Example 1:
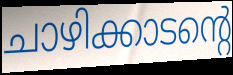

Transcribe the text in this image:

ചാഴിക്കാടന്റെ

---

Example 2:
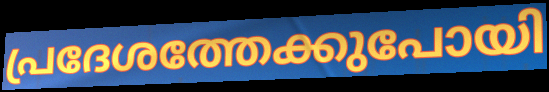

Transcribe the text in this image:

പ്രദേശത്തേക്കുപോയി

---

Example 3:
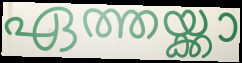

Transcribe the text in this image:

ഏത്തയ്ക്കാ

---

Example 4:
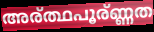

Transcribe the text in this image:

അര്ത്ഥപൂര്ണ്ണത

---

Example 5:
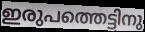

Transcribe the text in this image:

ഇരുപത്തെട്ടിനു